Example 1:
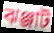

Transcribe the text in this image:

ঝঞ্জাট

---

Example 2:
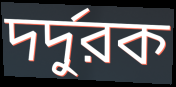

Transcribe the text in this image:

দর্দুরক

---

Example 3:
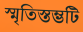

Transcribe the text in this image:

স্মৃতিস্তম্ভটি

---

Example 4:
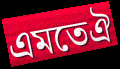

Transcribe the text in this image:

এমতেঐ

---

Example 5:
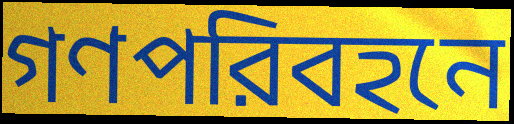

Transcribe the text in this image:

গণপরিবহনে